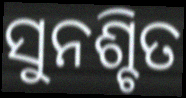
ସୁନଶ୍ଚିତ